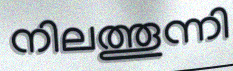
നിലത്തൂന്നി